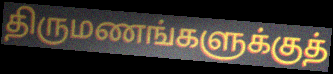
திருமணங்களுக்குத்